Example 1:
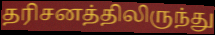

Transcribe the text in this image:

தரிசனத்திலிருந்து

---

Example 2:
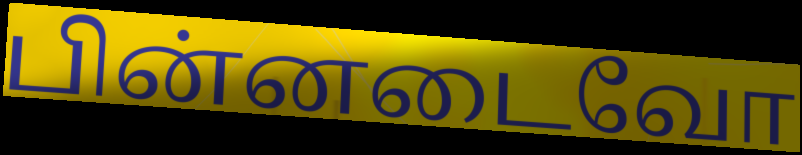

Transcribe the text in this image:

பின்னடைவோ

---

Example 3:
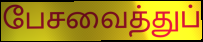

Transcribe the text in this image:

பேசவைத்துப்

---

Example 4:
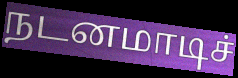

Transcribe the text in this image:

நடனமாடிச்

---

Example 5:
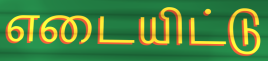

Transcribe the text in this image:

எடையிட்டு